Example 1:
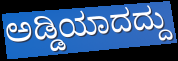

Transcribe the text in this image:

ಅಡ್ಡಿಯಾದದ್ದು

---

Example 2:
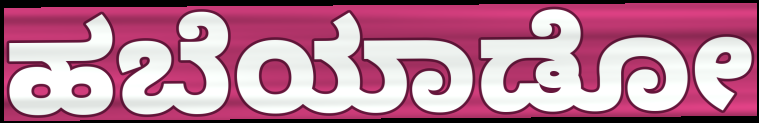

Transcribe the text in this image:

ಹಬೆಯಾಡೋ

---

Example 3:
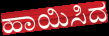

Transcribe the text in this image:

ಹಾಯಿಸಿದ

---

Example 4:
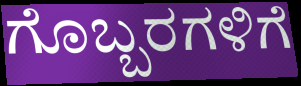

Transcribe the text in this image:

ಗೊಬ್ಬರಗಳಿಗೆ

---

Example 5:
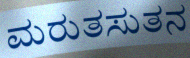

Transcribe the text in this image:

ಮರುತಸುತನ